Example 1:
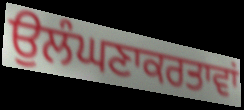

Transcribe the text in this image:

ਉਲੰਘਣਾਕਰਤਾਵਾਂ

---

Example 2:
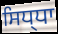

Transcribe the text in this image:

ਸਿਧ੍ਧਾ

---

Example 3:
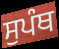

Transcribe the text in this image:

ਸੁਪੰਥ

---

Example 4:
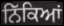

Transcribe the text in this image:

ਨਿੱਕਿਆਂ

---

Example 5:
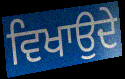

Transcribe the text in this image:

ਵਿਖਾਉਦੇ